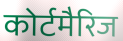
कोर्टमैरिज